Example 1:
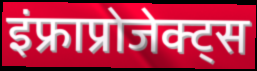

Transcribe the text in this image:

इंफ्राप्रोजेक्ट्स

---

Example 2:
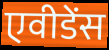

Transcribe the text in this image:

एवीडेंस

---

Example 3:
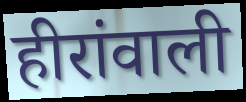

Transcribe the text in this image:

हीरांवाली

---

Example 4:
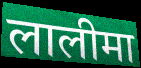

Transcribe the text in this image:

लालीमा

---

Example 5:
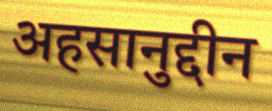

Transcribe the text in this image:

अहसानुद्दीन